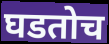
घडतोच